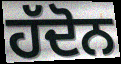
ਹੱਦੋਨ